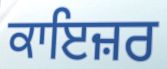
ਕਾਇਜ਼ਰ